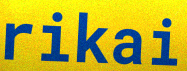
rikai